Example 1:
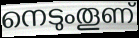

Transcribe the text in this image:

നെടുംതൂണ്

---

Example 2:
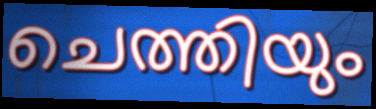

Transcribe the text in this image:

ചെത്തിയും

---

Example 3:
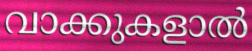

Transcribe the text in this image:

വാക്കുകളാൽ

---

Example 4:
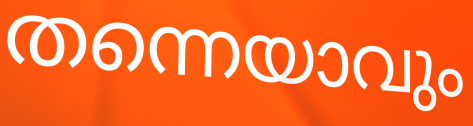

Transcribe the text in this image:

തന്നെയാവും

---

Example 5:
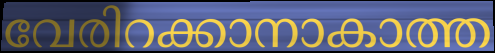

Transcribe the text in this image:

വേരിറക്കാനാകാത്ത